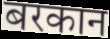
बरकान